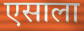
एसाला